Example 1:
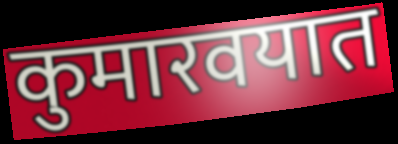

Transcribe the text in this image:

कुमारवयात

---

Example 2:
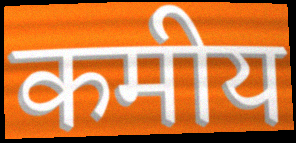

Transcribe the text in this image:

कमीय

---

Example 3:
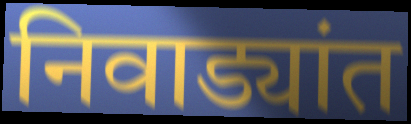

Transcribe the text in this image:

निवाड्यांत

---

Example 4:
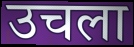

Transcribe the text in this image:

उचला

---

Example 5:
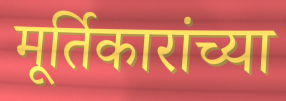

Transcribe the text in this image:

मूर्तिकारांच्या